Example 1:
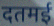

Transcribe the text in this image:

दतमई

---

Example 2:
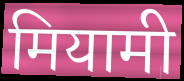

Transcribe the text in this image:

मियामी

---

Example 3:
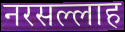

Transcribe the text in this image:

नरसल्लाह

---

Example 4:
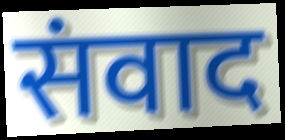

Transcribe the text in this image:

संवाद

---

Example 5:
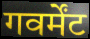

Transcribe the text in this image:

गवर्मेंट